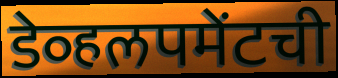
डेव्हलपमेंटची